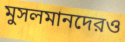
মুসলমানদেরও